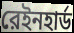
রেইনহার্ড